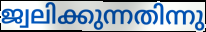
ജ്വലിക്കുന്നതിന്നു